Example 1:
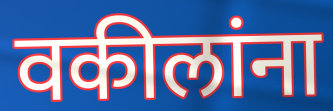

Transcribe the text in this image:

वकीलांना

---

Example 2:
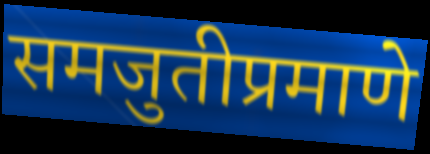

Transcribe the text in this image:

समजुतीप्रमाणे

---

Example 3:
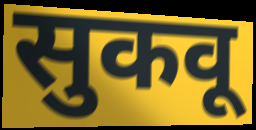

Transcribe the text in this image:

सुकवू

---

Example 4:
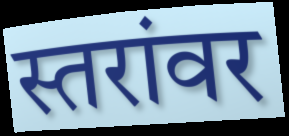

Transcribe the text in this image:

स्तरांवर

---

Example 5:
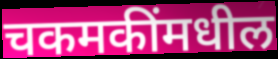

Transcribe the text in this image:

चकमकींमधील